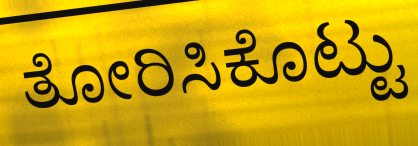
ತೋರಿಸಿಕೊಟ್ಟು